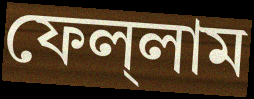
ফেল্‌লাম